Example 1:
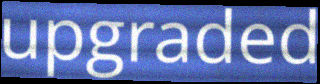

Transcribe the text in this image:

upgraded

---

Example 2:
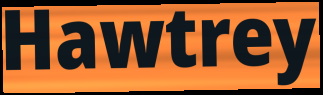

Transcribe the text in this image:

Hawtrey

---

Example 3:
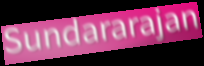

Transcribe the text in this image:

Sundararajan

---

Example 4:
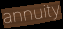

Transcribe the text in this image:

annuity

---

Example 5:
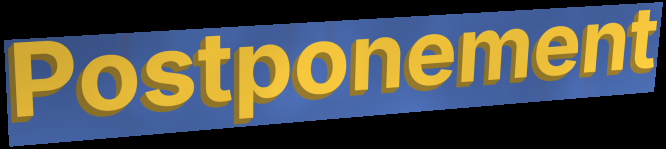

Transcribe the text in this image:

Postponement